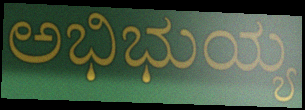
ಅಭಿಭುಯ್ಯ